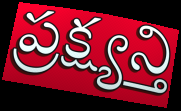
ప్రక్ష్యన్తి